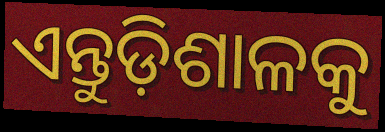
ଏନ୍ତୁଡ଼ିଶାଳକୁ